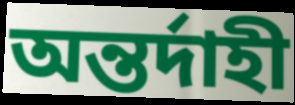
অন্তর্দাহী